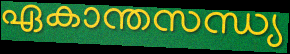
ഏകാന്തസന്ധ്യ